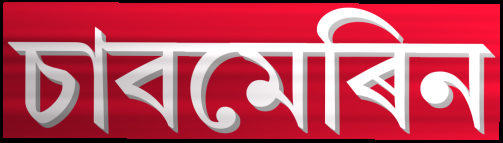
চাবমেৰিন